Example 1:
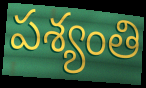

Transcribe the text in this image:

పశ్యంతి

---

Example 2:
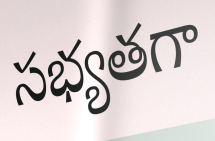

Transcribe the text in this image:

సభ్యతగా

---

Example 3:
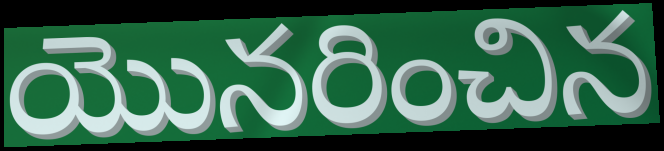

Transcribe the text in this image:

యొనరించిన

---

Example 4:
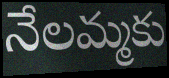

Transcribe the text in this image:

నేలమ్మకు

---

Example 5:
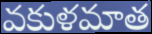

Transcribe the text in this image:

వకుళమాత